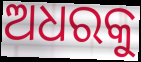
ଅଧରକୁ